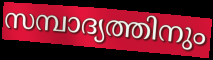
സമ്പാദ്യത്തിനും